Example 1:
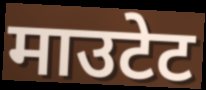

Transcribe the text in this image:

माउटेट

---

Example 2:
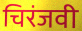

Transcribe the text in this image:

चिरंजवी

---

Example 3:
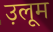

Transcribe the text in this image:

उ़लूम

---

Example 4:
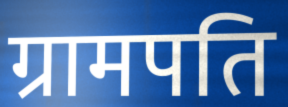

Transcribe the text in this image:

ग्रामपति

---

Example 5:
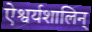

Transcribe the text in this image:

ऐश्वर्यशालिन्